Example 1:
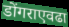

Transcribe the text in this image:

डोंगराएवढा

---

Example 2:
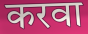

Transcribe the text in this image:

करवा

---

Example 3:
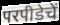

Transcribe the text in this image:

परपीडेचें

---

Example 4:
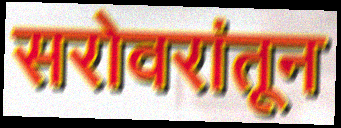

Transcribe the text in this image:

सरोवरांतून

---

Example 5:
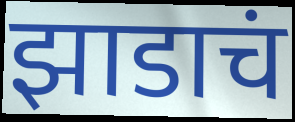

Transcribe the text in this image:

झाडाचं